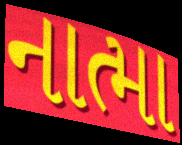
નાત્મા